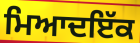
ਮਿਆਦਇੱਕ